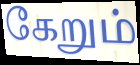
கேறும்